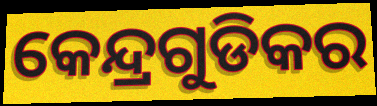
କେନ୍ଦ୍ରଗୁଡିକର